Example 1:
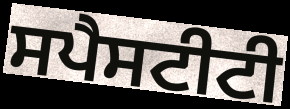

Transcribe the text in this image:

ਸਪੈਸਟੀਟੀ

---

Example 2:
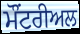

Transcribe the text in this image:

ਮੌਂਟਰੀਅਲ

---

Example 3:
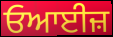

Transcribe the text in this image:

ਓਆਈਜ਼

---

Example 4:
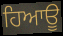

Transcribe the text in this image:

ਹਿਆਊ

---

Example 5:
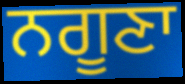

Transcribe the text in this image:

ਨਗੂਣਾ